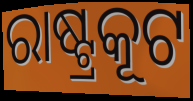
ରାଷ୍ଟ୍ରକୂଟ